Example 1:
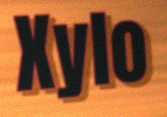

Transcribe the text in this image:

Xylo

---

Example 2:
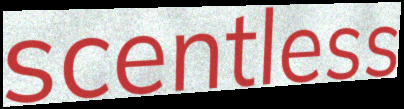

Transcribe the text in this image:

scentless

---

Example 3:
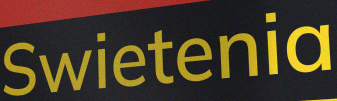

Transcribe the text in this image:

Swietenia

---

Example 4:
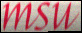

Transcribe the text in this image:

msu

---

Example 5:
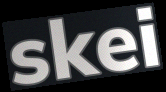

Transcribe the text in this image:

skei